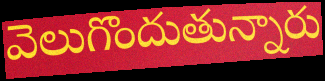
వెలుగొందుతున్నారు